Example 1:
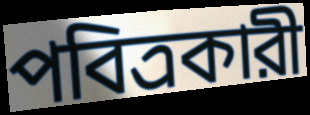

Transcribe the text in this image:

পবিত্রকারী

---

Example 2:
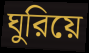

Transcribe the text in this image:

ঘুরিয়ে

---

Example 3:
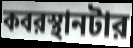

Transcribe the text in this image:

কবরস্থানটার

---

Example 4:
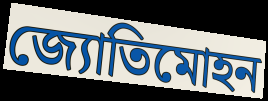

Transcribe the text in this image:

জ্যোতিমোহন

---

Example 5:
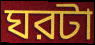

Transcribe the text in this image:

ঘরটা